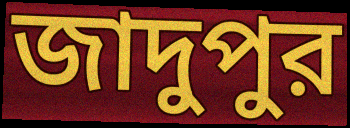
জাদুপুর